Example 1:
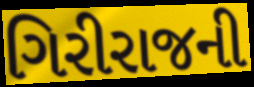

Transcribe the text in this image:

ગિરીરાજની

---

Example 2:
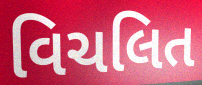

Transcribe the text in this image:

વિચલિત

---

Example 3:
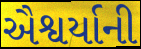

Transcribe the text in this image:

ઐશ્વર્યાની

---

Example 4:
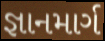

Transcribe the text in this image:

જ્ઞાનમાર્ગ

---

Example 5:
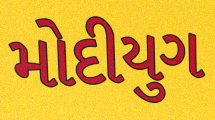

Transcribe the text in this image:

મોદીયુગ